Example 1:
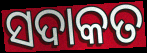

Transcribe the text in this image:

ସଦାକତ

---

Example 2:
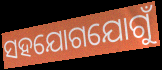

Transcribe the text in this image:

ସହଯୋଗଯୋଗୁଁ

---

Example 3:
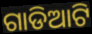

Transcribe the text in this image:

ଗାଡିଆଟି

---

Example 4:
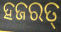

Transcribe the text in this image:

ହଜରତ୍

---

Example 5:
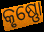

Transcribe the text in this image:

କୃଷ୍ଣୋ